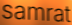
samrat